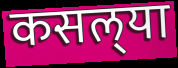
कसल्या